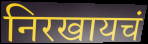
निरखायचं